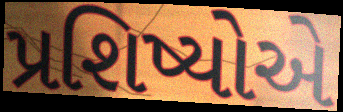
પ્રશિષ્યોએ